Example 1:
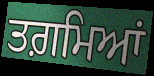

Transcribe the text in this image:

ਤਗ਼ਮਿਆਂ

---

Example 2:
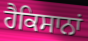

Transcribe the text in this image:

ਹੈਕਿਸਾਨਾਂ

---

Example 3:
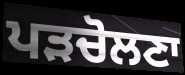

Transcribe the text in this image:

ਪੜਚੋਲਣਾ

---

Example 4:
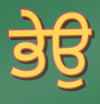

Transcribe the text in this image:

ਭੇਉ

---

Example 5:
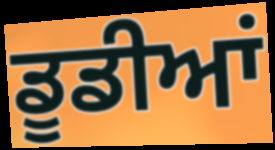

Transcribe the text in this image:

ਡੂਡੀਆਂ